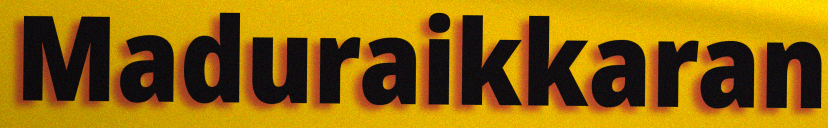
Maduraikkaran